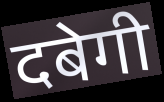
दबेगी